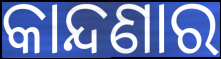
କାନ୍ଦଣାର